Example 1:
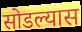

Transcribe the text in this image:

सोडल्यास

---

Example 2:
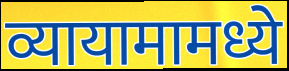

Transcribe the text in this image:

व्यायामामध्ये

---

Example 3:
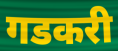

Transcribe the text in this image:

गडकरी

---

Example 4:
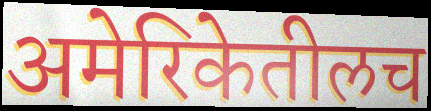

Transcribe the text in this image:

अमेरिकेतीलच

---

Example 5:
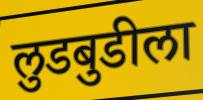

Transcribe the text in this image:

लुडबुडीला